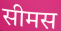
सीमस